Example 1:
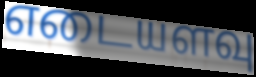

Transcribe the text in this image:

எடையளவு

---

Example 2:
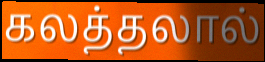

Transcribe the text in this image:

கலத்தலால்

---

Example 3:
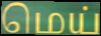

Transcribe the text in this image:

மெய்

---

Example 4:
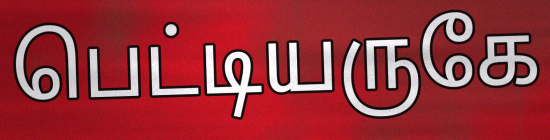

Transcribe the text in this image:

பெட்டியருகே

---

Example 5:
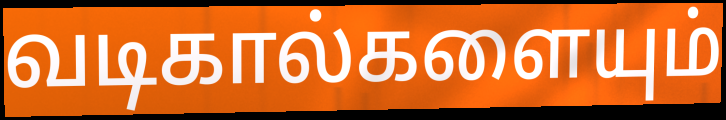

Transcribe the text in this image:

வடிகால்களையும்